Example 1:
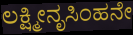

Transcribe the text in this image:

ಲಕ್ಷ್ಮೀನೃಸಿಂಹನೇ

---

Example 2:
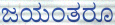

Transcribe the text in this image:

ಜಯಂತರೂ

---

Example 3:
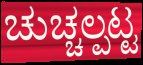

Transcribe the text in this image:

ಚುಚ್ಚಲ್ಪಟ್ಟ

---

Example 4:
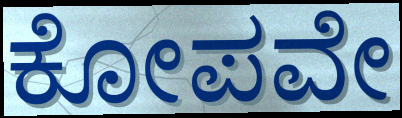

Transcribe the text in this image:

ಕೋಪವೇ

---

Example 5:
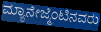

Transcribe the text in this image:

ಮ್ಯಾನೇಜ್ಮೆಂಟಿನವರು